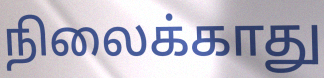
நிலைக்காது